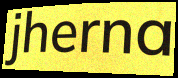
jherna